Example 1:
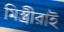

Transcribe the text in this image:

মিস্ত্রীরাই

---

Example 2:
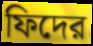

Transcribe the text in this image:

ফিদের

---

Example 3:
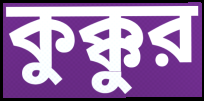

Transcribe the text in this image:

কুক্কুর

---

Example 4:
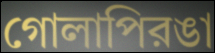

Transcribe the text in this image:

গোলাপিরঙা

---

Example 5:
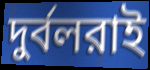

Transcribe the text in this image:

দুর্বলরাই